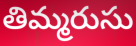
తిమ్మరుసు